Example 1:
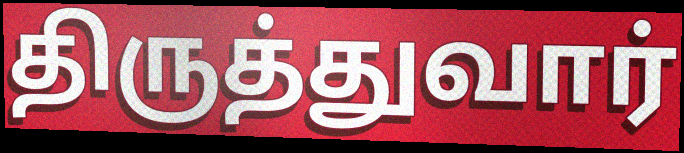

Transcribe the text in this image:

திருத்துவார்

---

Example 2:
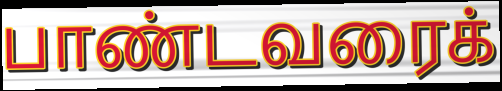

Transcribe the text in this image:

பாண்டவரைக்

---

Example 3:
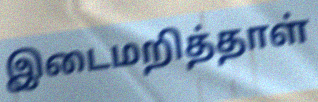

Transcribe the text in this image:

இடைமறித்தாள்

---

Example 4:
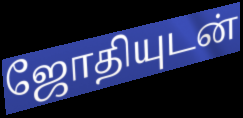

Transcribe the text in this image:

ஜோதியுடன்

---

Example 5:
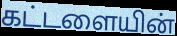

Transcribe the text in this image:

கட்டளையின்